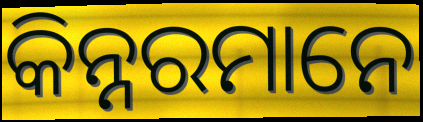
କିନ୍ନରମାନେ